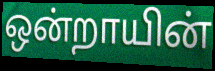
ஒன்றாயின்